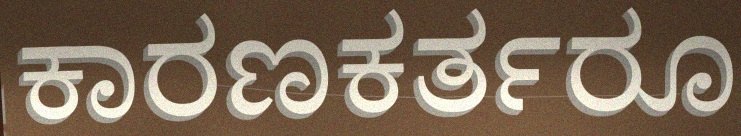
ಕಾರಣಕರ್ತರೂ